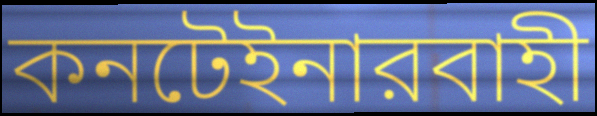
কনটেইনারবাহী